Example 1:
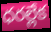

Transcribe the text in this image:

ధరల్లేక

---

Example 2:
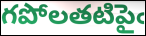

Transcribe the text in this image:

గపోలతటిపైఁ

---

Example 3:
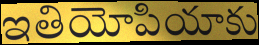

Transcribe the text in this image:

ఇతియోపియాకు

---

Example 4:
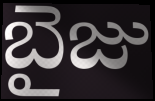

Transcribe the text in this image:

బైజు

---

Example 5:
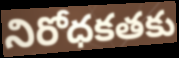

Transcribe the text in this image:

నిరోధకతకు